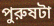
পুরুষটা